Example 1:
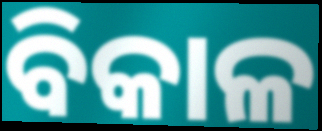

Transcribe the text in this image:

ବିକାଳ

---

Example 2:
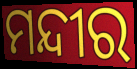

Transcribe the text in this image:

ମନ୍ଦୀର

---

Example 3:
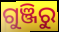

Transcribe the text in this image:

ଗୁଞ୍ଜିରୁ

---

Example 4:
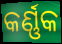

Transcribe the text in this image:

କର୍ଣ୍ଣକ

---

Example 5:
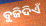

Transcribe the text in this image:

ବୁଜିଦିଏଁ